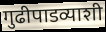
गुढीपाडव्याशी